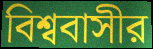
বিশ্ববাসীর